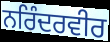
ਨਰਿੰਦਰਵੀਰ